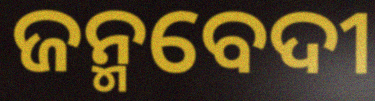
ଜନ୍ମବେଦୀ